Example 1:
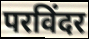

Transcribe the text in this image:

परविंदर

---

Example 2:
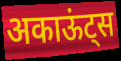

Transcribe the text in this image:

अकाऊंट्स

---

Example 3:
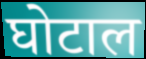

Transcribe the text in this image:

घोटाल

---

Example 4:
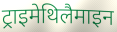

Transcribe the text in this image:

ट्राइमेथिलैमाइन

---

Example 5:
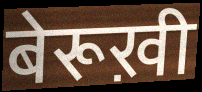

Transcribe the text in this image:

बेरूख़ी